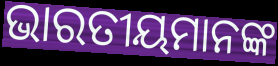
ଭାରତୀୟମାନଙ୍କ